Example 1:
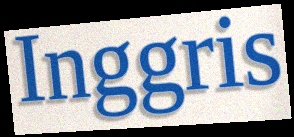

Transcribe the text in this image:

Inggris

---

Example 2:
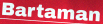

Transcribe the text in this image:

Bartaman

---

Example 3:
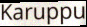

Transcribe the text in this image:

Karuppu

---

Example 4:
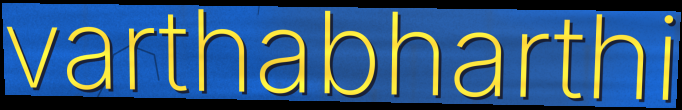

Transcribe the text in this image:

varthabharthi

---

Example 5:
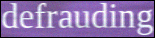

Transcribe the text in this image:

defrauding